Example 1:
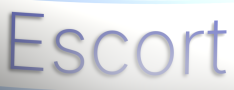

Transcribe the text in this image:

Escort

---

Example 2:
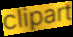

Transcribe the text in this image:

clipart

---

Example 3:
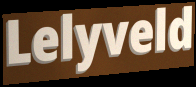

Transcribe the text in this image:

Lelyveld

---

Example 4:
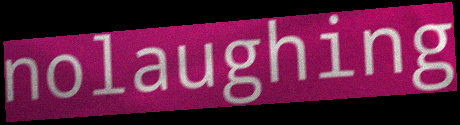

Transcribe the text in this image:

nolaughing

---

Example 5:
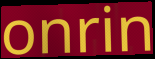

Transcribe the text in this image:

onrin